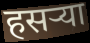
हसऱ्या